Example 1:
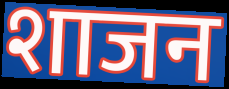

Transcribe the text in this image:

शाजन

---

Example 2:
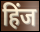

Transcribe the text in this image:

हिंज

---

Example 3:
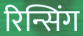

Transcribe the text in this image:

रिन्सिंग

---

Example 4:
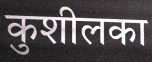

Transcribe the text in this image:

कुशीलका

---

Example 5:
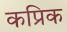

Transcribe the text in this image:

कप्रिक